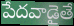
పేదవాడైతే